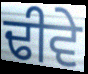
ਢੀਵੇ